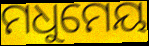
ମଧୁମେୟ